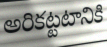
అరికట్టటానికి